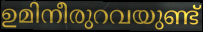
ഉമിനീരുറവയുണ്ട്